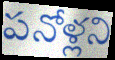
పనోళ్లని